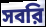
সবরি